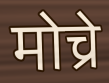
मोच्रे